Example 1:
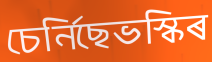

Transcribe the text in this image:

চেৰ্নিছেভস্কিৰ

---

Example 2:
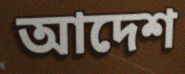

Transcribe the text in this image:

আদেশ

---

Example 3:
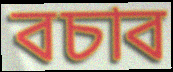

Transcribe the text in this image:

বচাব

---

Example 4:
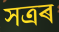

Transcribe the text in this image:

সত্ৰৰ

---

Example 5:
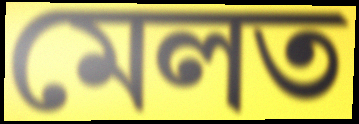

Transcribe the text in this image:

মেলত